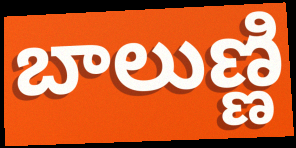
బాలుణ్ణి